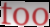
too